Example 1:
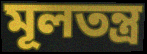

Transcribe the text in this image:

মূলতন্ত্র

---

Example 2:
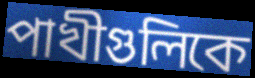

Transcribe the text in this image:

পাখীগুলিকে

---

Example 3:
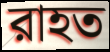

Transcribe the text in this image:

রাহত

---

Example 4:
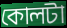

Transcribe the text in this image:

কোলটা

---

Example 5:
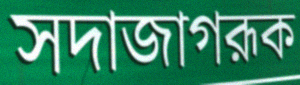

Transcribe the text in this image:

সদাজাগরূক